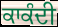
ਕਾਕੰਦੀ